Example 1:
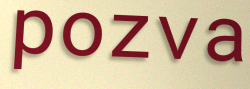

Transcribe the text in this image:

pozva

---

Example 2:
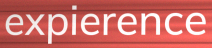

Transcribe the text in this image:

expierence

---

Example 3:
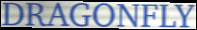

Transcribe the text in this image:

DRAGONFLY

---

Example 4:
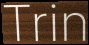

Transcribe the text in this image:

Trin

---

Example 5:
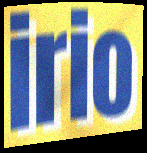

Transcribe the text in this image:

irio